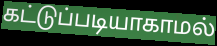
கட்டுப்படியாகாமல்